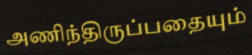
அணிந்திருப்பதையும்